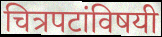
चित्रपटांविषयी